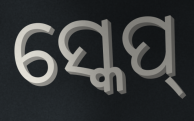
ସ୍କେପ୍